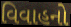
વિવાહનો